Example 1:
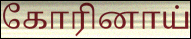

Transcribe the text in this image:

கோரினாய்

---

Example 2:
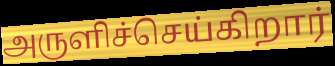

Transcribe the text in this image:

அருளிச்செய்கிறார்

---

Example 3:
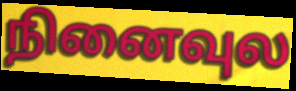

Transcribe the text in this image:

நினைவுல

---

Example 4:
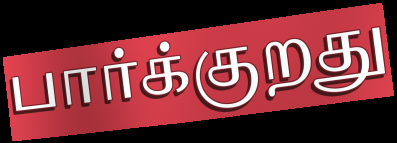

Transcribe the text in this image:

பார்க்குறது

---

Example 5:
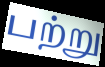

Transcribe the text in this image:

பற்று